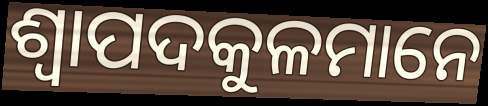
ଶ୍ୱାପଦକୁଳମାନେ